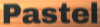
Pastel